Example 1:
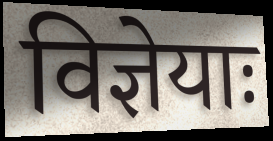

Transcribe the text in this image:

विज्ञेयाः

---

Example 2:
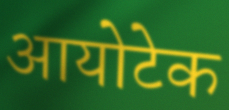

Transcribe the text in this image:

आयोटेक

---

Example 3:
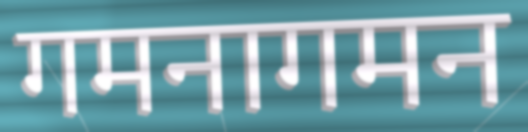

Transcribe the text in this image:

गमनागमन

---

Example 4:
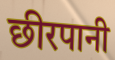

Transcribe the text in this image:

छीरपानी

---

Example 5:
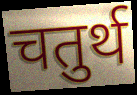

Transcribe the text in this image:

चतुर्थ